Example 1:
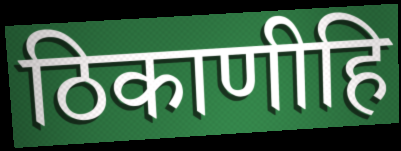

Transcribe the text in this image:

ठिकाणीहि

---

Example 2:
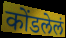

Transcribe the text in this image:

कोंडलेलं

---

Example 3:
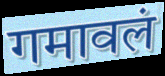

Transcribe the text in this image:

गमावलं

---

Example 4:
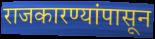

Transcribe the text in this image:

राजकारण्यांपासून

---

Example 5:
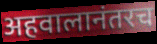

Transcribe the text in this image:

अहवालानंतरच